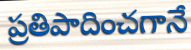
ప్రతిపాదించగానే